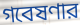
গবেষণার